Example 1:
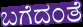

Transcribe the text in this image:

ಬಗೆದಂತೆ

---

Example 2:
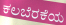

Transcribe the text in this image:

ಕಲಬೆರಕೆಯ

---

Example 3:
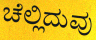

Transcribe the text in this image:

ಚೆಲ್ಲಿದುವು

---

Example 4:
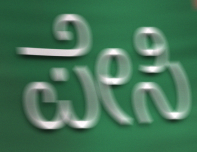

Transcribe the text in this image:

ಪೇಸಿ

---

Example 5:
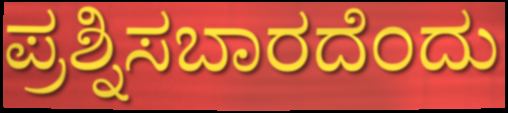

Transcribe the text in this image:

ಪ್ರಶ್ನಿಸಬಾರದೆಂದು